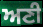
ਅਣੀ